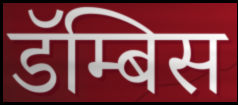
डॅम्बिस